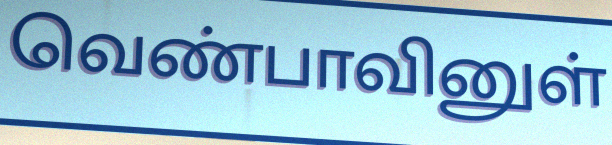
வெண்பாவினுள்